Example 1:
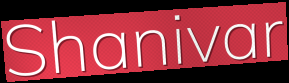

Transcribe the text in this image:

Shanivar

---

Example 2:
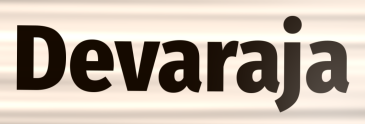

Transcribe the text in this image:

Devaraja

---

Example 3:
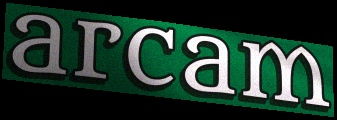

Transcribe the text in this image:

arcam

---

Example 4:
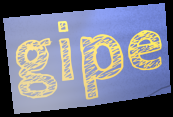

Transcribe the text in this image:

gipe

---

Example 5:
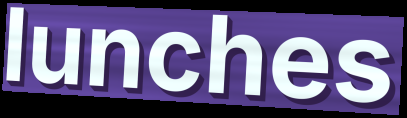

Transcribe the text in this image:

lunches